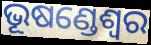
ଭୂଷଣ୍ଡେଶ୍ଵର